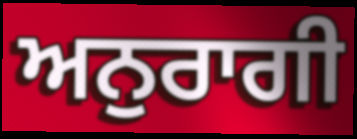
ਅਨੁਰਾਗੀ